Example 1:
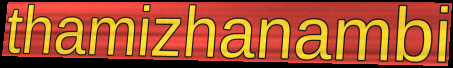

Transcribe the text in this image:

thamizhanambi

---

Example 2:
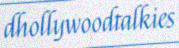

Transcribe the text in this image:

dhollywoodtalkies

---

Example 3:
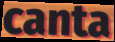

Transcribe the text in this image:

canta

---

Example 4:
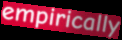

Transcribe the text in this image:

empirically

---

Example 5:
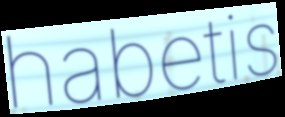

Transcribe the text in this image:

habetis